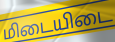
மிடையிடை